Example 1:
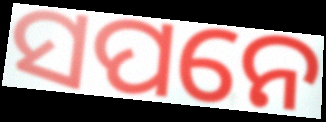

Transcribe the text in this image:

ସପନେ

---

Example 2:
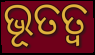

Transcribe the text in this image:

ଭୂତତ୍ୱ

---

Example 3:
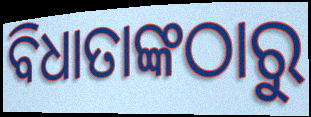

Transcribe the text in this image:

ବିଧାତାଙ୍କଠାରୁ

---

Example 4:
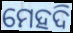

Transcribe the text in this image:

ମେହଦି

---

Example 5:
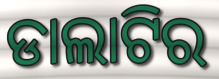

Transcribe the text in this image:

ଡାଲାଟିର